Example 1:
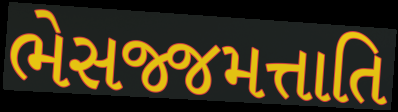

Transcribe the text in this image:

ભેસજ્જમત્તાતિ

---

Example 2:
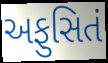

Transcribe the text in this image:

અફુસિતં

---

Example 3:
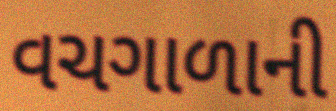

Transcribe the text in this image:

વચગાળાની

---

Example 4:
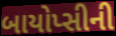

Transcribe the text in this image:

બાયોપ્સીની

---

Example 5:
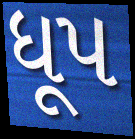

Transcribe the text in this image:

ધૂપ